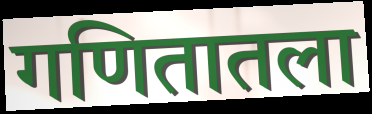
गणितातला